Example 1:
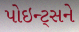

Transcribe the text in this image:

પોઇન્ટ્સને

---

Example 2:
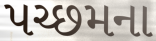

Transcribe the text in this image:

પચ્છમના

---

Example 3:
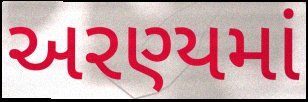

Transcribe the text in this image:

અરણ્યમાં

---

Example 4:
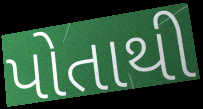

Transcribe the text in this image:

પોતાથી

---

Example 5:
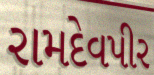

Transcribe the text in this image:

રામદેવપીર